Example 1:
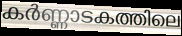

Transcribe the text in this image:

കർണ്ണാടകത്തിലെ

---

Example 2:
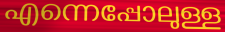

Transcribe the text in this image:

എന്നെപ്പോലുള്ള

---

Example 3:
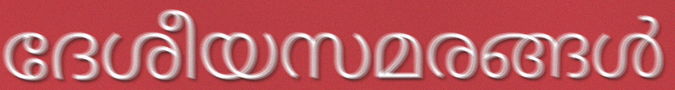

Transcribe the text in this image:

ദേശീയസമരങ്ങൾ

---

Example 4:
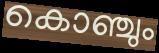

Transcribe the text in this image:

കൊഞ്ചും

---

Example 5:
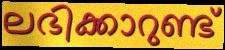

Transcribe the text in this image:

ലഭിക്കാറുണ്ട്